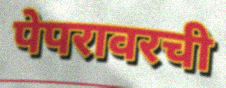
पेपरावरची